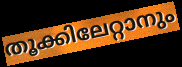
തൂക്കിലേറ്റാനും